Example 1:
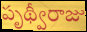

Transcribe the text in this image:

పృథ్వీరాజు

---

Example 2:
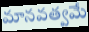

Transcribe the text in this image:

మానవత్వమే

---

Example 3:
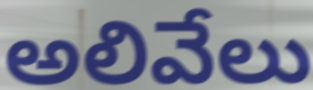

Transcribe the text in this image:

అలివేలు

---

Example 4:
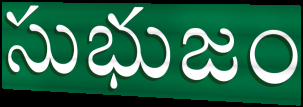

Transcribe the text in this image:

సుభుజం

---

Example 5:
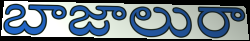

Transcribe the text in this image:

బాజాలురా